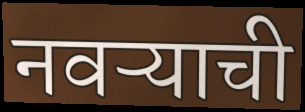
नवऱ्याची